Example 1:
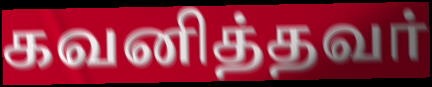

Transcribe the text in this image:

கவனித்தவர்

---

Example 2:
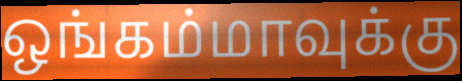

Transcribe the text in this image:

ஒங்கம்மாவுக்கு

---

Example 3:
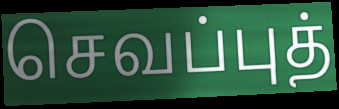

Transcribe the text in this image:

செவப்புத்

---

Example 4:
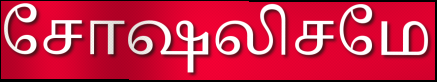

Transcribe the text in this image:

சோஷலிசமே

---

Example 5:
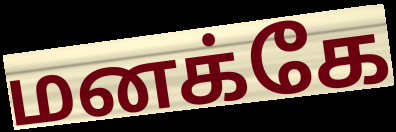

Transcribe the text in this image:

மனக்கே